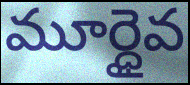
మూర్ధైవ